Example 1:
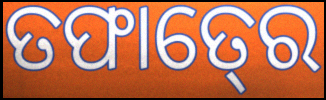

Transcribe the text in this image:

ତଫାତ୍‍ରେ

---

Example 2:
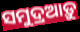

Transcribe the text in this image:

ସମୁଦ୍ରଆଡ଼ୁ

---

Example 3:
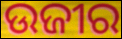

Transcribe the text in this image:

ଉଜୀର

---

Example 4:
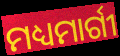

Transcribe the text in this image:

ମଧ୍ୟମାର୍ଗୀ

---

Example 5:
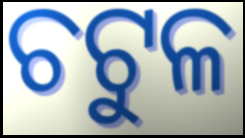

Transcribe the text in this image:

ଚଟୁଳ